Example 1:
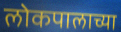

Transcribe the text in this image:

लोकपालाच्या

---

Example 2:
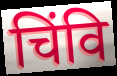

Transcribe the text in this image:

चिंवि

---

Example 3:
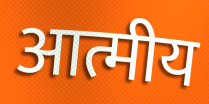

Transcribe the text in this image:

आत्मीय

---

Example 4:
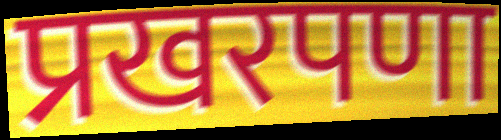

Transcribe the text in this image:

प्रखरपणा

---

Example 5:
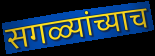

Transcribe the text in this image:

सगळ्यांच्याच